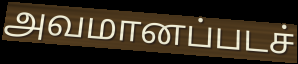
அவமானப்படச்